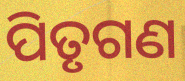
ପିତୃଗଣ